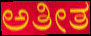
ಅತೀತ